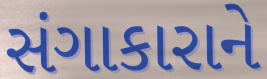
સંગાકારાને